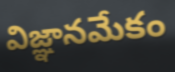
విజ్ఞానమేకం